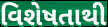
વિશેષતાથી